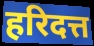
हरिदत्त